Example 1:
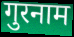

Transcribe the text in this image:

गुरनाम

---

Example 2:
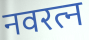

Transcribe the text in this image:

नवरत्‍न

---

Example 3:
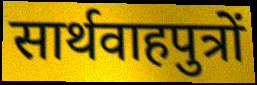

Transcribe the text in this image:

सार्थवाहपुत्रों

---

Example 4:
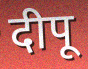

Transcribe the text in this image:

दीपू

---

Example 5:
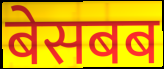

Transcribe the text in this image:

बेसबब